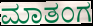
ಮಾತಂಗ